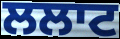
ਲਲਾਟ